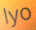
lyo